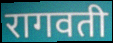
रागवती